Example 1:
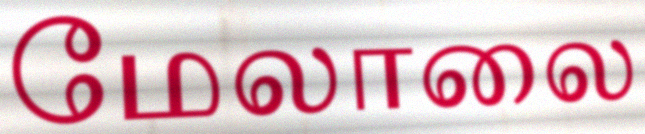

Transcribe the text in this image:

மேலாலை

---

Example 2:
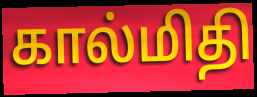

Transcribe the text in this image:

கால்மிதி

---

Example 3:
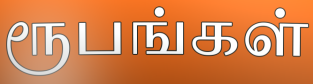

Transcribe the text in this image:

ரூபங்கள்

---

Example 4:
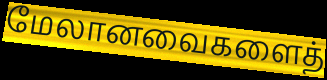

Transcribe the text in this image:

மேலானவைகளைத்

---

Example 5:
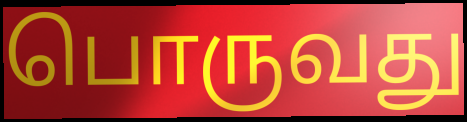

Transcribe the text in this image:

பொருவது